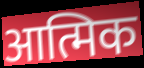
आत्मिक